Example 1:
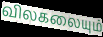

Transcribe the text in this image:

விலகலையும்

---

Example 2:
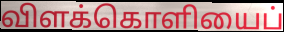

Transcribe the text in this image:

விளக்கொளியைப்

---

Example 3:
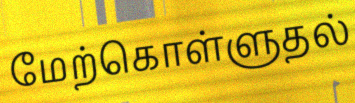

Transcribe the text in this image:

மேற்கொள்ளுதல்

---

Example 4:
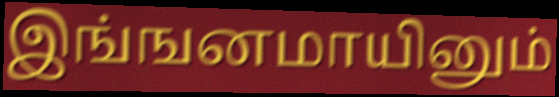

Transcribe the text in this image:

இங்ஙனமாயினும்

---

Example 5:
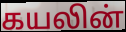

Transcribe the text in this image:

கயலின்